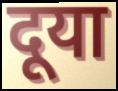
दूया